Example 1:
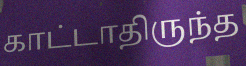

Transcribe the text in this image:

காட்டாதிருந்த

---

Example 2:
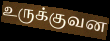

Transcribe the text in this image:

உருக்குவன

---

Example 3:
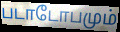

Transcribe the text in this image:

படாடோபமும்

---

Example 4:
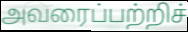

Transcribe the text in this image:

அவரைப்பற்றிச்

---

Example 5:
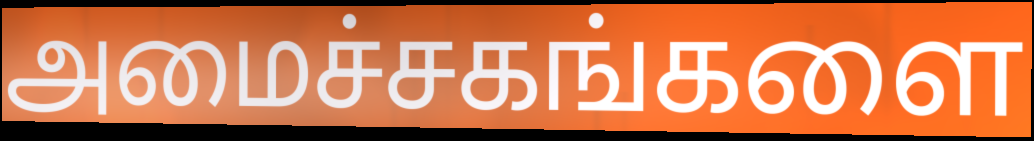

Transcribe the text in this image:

அமைச்சகங்களை